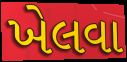
ખેલવા